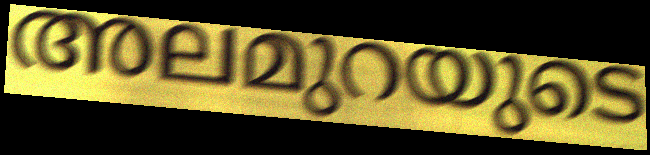
അലമുറയുടെ